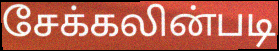
சேக்கலின்படி